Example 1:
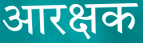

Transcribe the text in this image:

आरक्षक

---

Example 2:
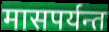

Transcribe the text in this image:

मासपर्यन्त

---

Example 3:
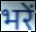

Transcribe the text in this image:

भरें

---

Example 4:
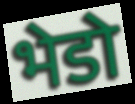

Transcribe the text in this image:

भेडो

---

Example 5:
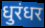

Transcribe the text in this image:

धुरंधर